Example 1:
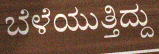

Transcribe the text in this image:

ಬೆಳೆಯುತ್ತಿದ್ದು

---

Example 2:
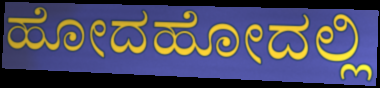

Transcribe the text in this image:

ಹೋದಹೋದಲ್ಲಿ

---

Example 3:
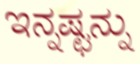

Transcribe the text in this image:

ಇನ್ನಷ್ಟನ್ನು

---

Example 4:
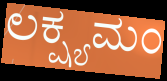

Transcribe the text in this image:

ಲಕ್ಷ್ಯಮಂ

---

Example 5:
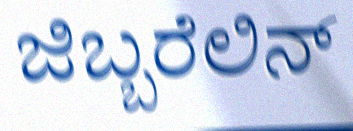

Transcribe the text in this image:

ಜಿಬ್ಬರೆಲಿನ್